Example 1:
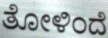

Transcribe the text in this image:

ತೋಳಿಂದೆ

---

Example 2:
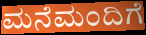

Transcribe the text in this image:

ಮನೆಮಂದಿಗೆ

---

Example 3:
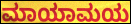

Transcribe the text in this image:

ಮಾಯಾಮಯ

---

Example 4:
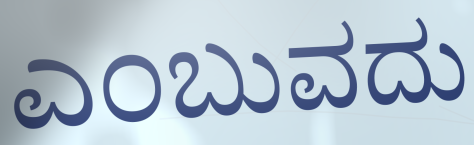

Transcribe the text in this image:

ಎಂಬುವದು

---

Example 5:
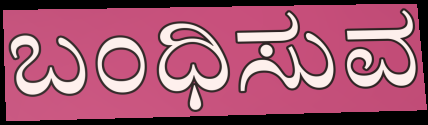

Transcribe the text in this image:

ಬಂಧಿಸುವ